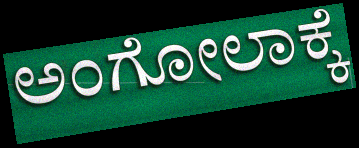
ಅಂಗೋಲಾಕ್ಕೆ